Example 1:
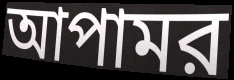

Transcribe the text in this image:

আপামর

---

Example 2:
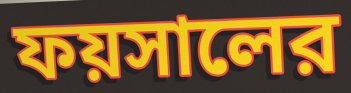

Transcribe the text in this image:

ফয়সালের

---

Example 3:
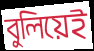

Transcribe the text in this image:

বুলিয়েই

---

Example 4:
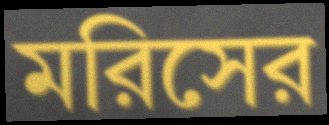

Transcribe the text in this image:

মরিসের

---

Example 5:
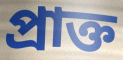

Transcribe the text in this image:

প্রাক্ত